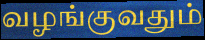
வழங்குவதும்